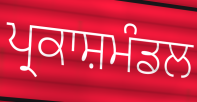
ਪ੍ਰਕਾਸ਼ਮੰਡਲ